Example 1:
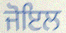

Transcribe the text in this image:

ਜੋਇਲ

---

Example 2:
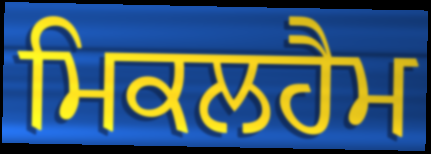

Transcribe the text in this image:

ਮਿਕਲਹੈਮ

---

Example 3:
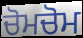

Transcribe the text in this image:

ਚੋਮਚੋਮ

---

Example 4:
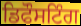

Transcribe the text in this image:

ਡਿਫੌਸਟਿੰਗ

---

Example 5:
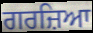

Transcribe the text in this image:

ਗਰਜ਼ਿਆ